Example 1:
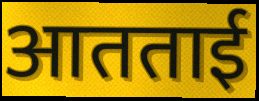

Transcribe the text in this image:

आतताई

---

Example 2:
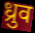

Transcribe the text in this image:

ध्रुव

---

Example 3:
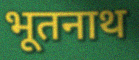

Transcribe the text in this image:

भूतनाथ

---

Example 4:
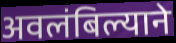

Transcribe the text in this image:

अवलंबिल्याने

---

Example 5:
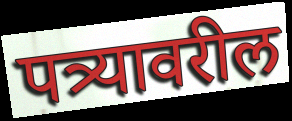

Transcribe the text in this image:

पत्र्यावरील